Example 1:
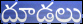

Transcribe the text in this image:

దూడలు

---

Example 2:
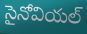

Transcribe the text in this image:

సైనోవియల్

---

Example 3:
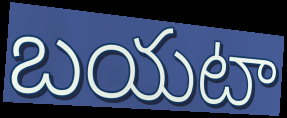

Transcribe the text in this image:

బయటా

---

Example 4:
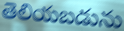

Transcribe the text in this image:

తెలియబడును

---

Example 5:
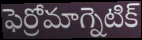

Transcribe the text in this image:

ఫెర్రోమాగ్నెటిక్